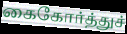
கைகோர்த்துச்